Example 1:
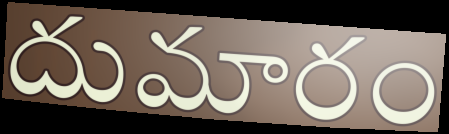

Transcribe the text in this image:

దుమారం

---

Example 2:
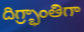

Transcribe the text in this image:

దిగ్ర్భాంతిగా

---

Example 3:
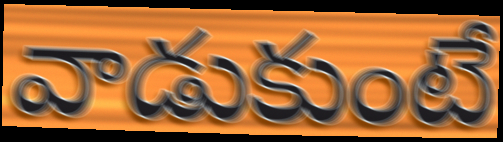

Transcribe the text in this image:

వాడుకుంటే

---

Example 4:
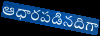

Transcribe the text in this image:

ఆధారపడినదిగా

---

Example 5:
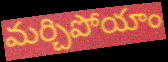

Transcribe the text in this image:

మర్చిపోయాం